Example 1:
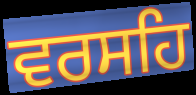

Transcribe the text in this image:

ਵਰਸਹਿ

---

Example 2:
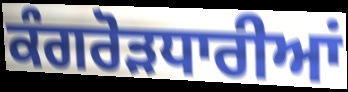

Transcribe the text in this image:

ਕੰਗਰੋੜਧਾਰੀਆਂ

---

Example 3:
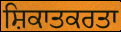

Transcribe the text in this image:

ਸ਼ਿਕਾਤਕਰਤਾ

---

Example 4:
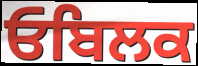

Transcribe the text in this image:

ਓਬਿਲਕ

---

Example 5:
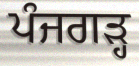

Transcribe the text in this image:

ਪੰਜਗੜ੍ਹ